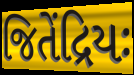
જિતેંદ્રિયઃ